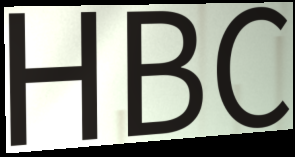
HBC